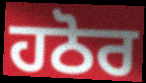
ਹਠੋਰ